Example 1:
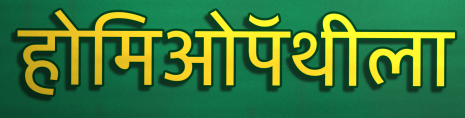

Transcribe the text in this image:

होमिओपॅथीला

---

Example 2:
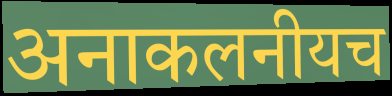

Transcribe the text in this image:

अनाकलनीयच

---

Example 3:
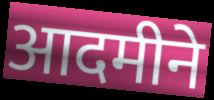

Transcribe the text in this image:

आदमीने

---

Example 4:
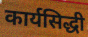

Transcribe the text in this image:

कार्यसिद्धी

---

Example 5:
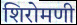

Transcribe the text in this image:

शिरोमणी